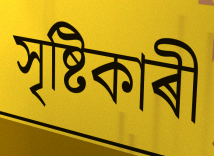
সৃষ্টিকাৰী